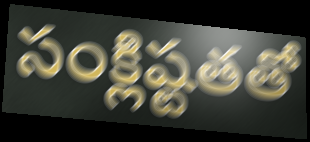
సంక్లిష్టతతో